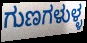
ಗುಣಗಳುಳ್ಳ